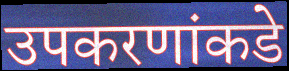
उपकरणांकडे